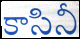
కాసినీ